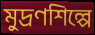
মুদ্রণশিল্পে